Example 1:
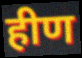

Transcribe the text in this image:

हीण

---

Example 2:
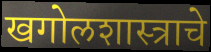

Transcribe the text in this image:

खगोलशास्त्राचे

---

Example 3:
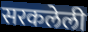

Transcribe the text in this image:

सरकलेली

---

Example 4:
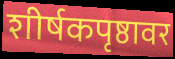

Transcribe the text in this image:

शीर्षकपृष्ठावर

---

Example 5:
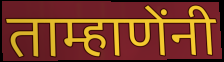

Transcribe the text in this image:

ताम्हाणेंनी